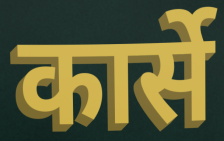
कार्से